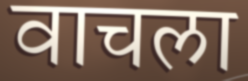
वाचला